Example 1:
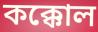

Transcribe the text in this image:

কক্কোল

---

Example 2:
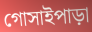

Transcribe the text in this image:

গোসাইপাড়া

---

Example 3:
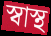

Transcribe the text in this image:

স্বাস্থ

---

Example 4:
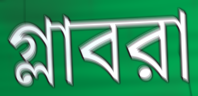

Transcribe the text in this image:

গ্লাবরা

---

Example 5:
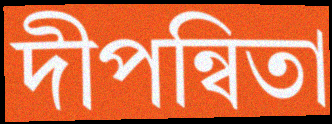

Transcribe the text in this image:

দীপন্বিতা